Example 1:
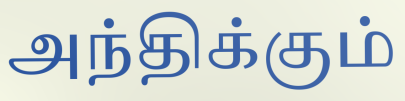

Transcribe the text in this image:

அந்திக்கும்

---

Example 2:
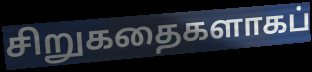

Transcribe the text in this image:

சிறுகதைகளாகப்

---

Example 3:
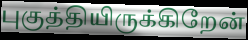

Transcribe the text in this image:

புகுத்தியிருக்கிறேன்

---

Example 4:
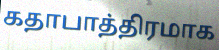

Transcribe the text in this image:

கதாபாத்திரமாக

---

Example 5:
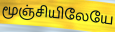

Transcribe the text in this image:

மூஞ்சியிலேயே